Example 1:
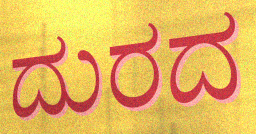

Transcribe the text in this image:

ದುರದ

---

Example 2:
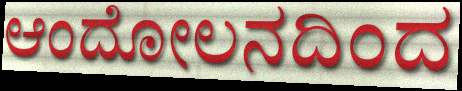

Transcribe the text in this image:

ಆಂದೋಲನದಿಂದ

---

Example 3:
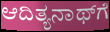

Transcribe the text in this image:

ಆದಿತ್ಯನಾಥ್‌ಗೆ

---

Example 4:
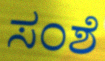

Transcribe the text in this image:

ಸಂಶೆ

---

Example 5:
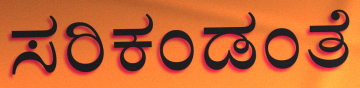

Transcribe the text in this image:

ಸರಿಕಂಡಂತೆ